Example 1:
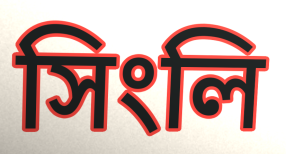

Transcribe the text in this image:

সিংলি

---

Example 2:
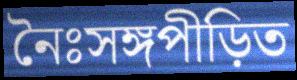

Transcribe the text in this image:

নৈঃসঙ্গপীড়িত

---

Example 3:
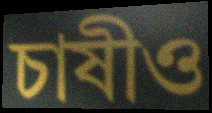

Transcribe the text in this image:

চাষীও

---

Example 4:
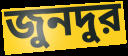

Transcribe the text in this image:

জুনদুর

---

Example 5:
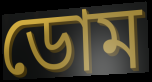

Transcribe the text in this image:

ডোম